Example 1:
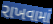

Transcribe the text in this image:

રાખવામાં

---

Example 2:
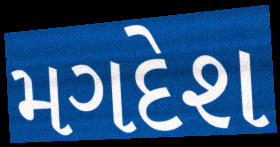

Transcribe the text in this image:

મગદેશ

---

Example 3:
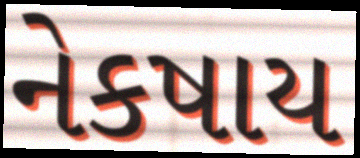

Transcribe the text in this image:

નેકષાય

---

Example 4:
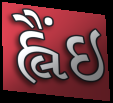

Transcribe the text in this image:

હ્લૈંઇ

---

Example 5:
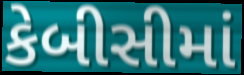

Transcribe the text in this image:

કેબીસીમાં